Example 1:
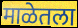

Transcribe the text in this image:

माळेतला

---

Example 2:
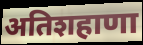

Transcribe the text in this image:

अतिशहाणा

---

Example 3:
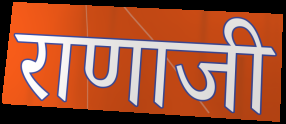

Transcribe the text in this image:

राणाजी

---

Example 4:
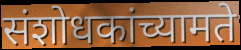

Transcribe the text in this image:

संशोधकांच्यामते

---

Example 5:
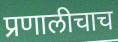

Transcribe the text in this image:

प्रणालीचाच